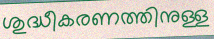
ശുദ്ധീകരണത്തിനുള്ള